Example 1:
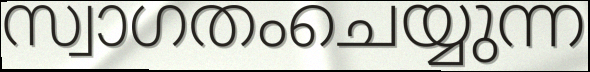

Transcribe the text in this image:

സ്വാഗതംചെയ്യുന്ന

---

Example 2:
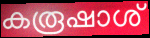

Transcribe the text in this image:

കരൂഷാശ്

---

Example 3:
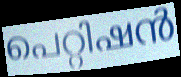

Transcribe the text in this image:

പെറ്റിഷൻ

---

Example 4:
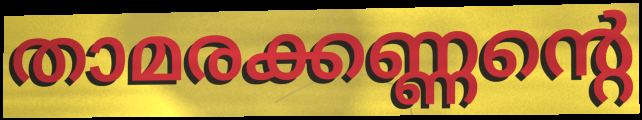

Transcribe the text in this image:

താമരക്കണ്ണന്റെ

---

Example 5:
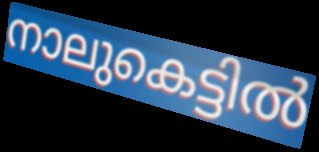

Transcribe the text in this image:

നാലുകെട്ടിൽ